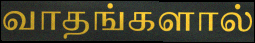
வாதங்களால்